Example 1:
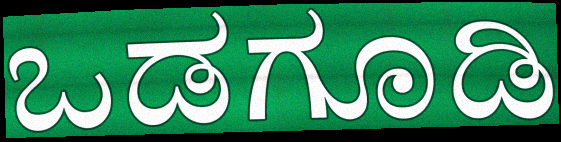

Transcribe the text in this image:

ಒಡಗೂಡಿ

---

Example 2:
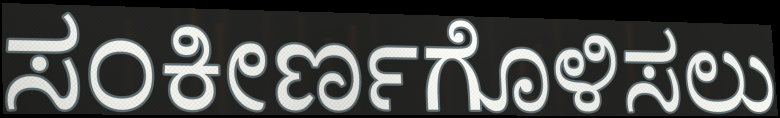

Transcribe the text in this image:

ಸಂಕೀರ್ಣಗೊಳಿಸಲು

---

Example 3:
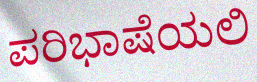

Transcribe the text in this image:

ಪರಿಭಾಷೆಯಲಿ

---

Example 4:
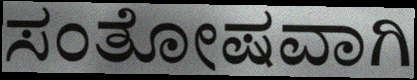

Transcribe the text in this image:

ಸಂತೋಷವಾಗಿ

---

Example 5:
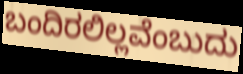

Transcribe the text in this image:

ಬಂದಿರಲಿಲ್ಲವೆಂಬುದು